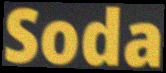
Soda